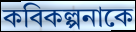
কবিকল্পনাকে